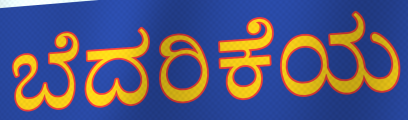
ಬೆದರಿಕೆಯ